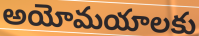
అయోమయాలకు